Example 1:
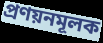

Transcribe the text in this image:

প্রণয়নমূলক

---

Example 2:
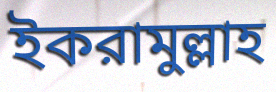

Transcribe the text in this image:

ইকরামুল্লাহ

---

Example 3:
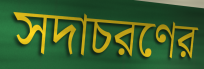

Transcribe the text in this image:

সদাচরণের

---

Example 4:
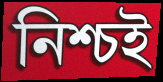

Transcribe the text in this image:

নিশ্চই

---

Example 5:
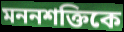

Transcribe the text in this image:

মননশক্তিকে